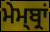
ਮੇਮ੍ਬ੍ਰਾਂ